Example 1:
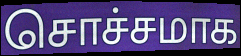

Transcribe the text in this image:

சொச்சமாக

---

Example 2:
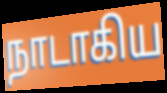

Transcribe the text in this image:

நாடாகிய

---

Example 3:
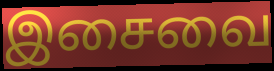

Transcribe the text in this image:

இசைவை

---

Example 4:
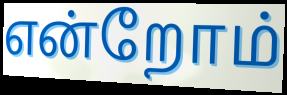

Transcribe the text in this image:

என்றோம்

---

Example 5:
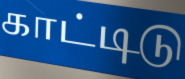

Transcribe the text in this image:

காட்டிடு